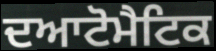
ਦਆਟੋਮੈਟਿਕ